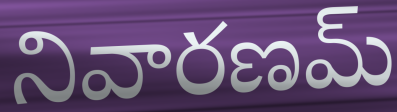
నివారణమ్